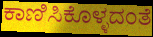
ಕಾಣಿಸಿಕೊಳ್ಳದಂತೆ